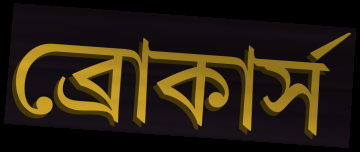
ব্রোকার্স